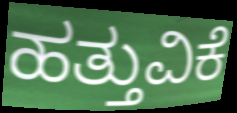
ಹತ್ತುವಿಕೆ